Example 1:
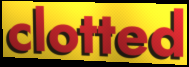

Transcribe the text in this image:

clotted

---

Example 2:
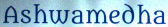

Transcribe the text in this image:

Ashwamedha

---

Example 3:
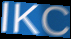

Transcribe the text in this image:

IKC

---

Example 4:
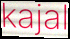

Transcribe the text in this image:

kajal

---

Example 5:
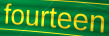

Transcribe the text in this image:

fourteen